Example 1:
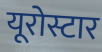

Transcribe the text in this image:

यूरोस्टार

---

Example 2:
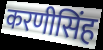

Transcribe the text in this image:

करणीसिंह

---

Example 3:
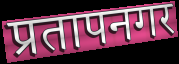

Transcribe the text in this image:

प्रतापनगर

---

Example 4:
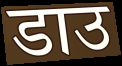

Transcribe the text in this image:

डाउ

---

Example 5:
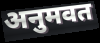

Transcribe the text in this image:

अनुमवत